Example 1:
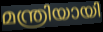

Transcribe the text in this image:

മന്ത്രിയായി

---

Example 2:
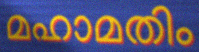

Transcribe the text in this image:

മഹാമതിം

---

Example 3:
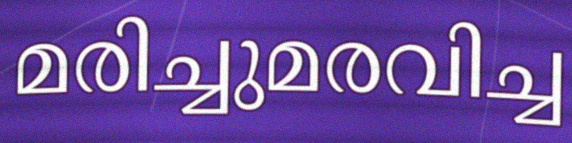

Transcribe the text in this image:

മരിച്ചുമരവിച്ച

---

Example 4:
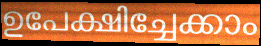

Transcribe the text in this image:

ഉപേക്ഷിച്ചേക്കാം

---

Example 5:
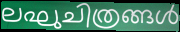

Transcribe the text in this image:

ലഘുചിത്രങ്ങൾ